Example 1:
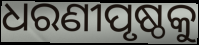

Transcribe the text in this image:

ଧରଣୀପୃଷ୍ଠକୁ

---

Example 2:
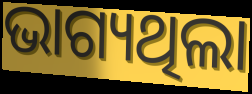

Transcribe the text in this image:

ଭାଗ୍ୟଥିଲା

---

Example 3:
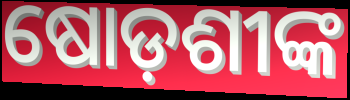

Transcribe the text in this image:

ଷୋଡ଼ଶୀଙ୍କ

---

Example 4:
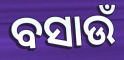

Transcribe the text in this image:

ବସାଉଁ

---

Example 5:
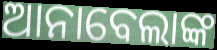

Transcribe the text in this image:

ଆନାବେଲାଙ୍କ